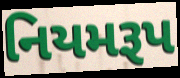
નિયમરૂપ